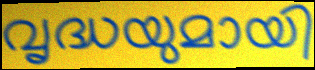
വൃദ്ധയുമായി